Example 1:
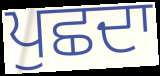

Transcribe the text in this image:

ਪੁਛਦਾ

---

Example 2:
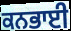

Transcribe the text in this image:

ਕਨਭਾਈ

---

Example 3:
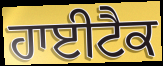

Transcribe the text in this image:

ਹਾਈਟੈਕ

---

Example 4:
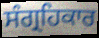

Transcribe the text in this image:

ਸੰਗ੍ਰਹਿਕਾਰ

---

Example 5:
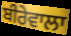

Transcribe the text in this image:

ਬੀਰੇਵਾਲਾ